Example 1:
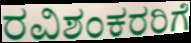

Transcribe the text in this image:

ರವಿಶಂಕರರಿಗೆ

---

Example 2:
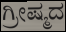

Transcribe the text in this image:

ಗ್ರೀಷ್ಮದ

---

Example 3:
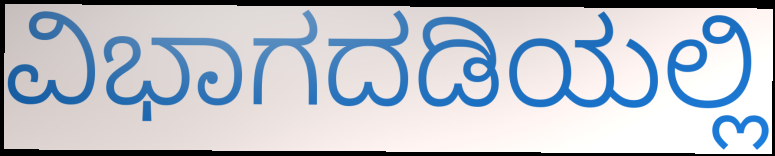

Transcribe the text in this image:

ವಿಭಾಗದಡಿಯಲ್ಲಿ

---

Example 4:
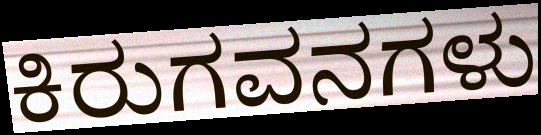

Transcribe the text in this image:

ಕಿರುಗವನಗಳು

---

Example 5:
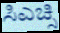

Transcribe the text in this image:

ಸಿಎಚ್ಸಿ